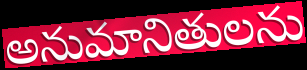
అనుమానితులను